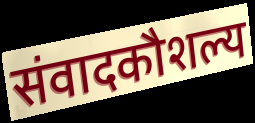
संवादकौशल्य